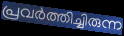
പ്രവർത്തിച്ചിരുന്ന